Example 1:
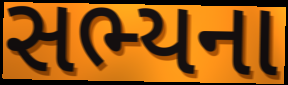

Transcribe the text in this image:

સભ્યના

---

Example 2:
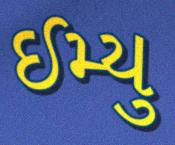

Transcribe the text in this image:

ઈમ્યુ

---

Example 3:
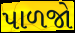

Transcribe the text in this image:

પાળજો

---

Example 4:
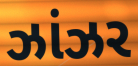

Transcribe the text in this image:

ઝાંઝર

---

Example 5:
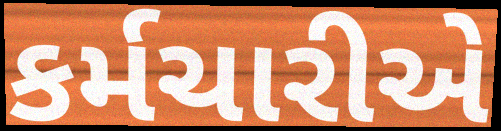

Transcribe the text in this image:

કર્મચારીએ